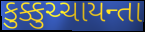
કુક્કુચ્ચાયન્તા